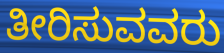
ತೀರಿಸುವವರು